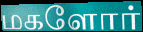
மகளோர்